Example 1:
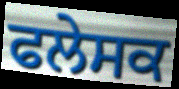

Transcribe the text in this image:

ਫਲੇਸਕ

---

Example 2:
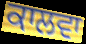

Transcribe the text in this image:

ਕਾਲਵਾ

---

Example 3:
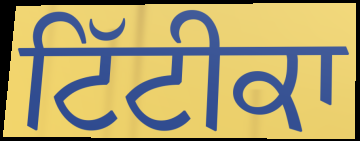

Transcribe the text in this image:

ਟਿੱਟੀਕਾ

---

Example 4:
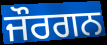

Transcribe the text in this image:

ਜੌਰਗਨ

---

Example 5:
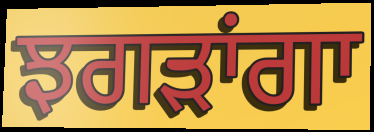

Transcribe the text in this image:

ਝਗੜਾਂਗਾ